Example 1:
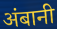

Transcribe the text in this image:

अंबानी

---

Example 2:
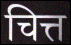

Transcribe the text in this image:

चित्त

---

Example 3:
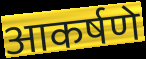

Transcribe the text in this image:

आकर्षणे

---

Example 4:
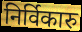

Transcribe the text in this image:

निर्विकारु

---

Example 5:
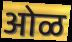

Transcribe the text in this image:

ओळ